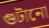
গুটানো